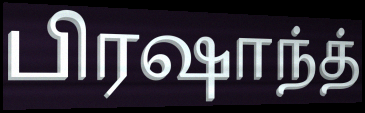
பிரஷாந்த்